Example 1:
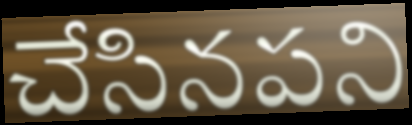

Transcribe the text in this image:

చేసినపని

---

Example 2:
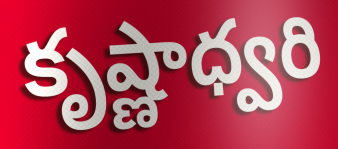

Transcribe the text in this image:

కృష్ణాధ్వరి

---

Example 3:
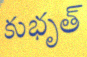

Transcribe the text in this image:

కుభృత్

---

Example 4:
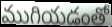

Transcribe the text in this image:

ముగియడంతో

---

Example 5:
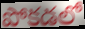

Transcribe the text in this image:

పోకడలో